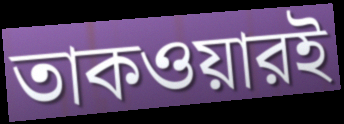
তাকওয়ারই